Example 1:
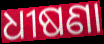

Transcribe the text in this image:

ଧୀଷଣା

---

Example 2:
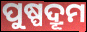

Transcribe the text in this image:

ପୁଷ୍ପଦ୍ରୂମ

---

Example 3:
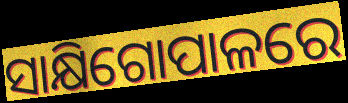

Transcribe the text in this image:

ସାକ୍ଷିଗୋପାଳରେ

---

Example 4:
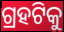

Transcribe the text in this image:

ଗ୍ରହଟିକୁ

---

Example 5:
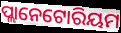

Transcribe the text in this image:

ପ୍ଲାନେଟୋରିୟମ